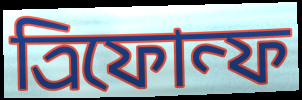
ত্রিফোন্ফ